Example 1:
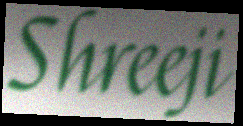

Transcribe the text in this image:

Shreeji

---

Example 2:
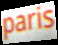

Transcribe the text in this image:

paris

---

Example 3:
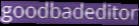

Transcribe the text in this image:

goodbadeditor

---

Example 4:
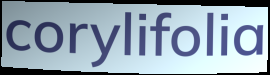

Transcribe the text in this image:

corylifolia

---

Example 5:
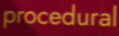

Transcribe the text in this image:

procedural